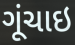
ગૂંચાઇ